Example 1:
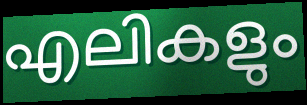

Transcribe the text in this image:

എലികളും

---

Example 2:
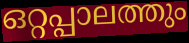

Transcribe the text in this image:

ഒറ്റപ്പാലത്തും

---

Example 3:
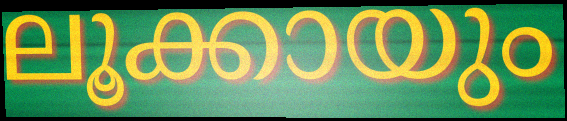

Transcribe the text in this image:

ലൂക്കായും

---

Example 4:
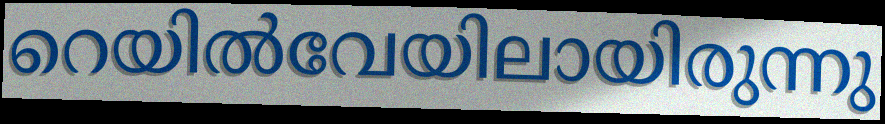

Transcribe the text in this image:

റെയിൽവേയിലായിരുന്നു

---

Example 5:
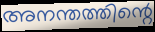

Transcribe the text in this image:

അനന്തത്തിന്റെ